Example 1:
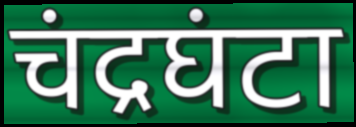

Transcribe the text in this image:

चंद्रघंटा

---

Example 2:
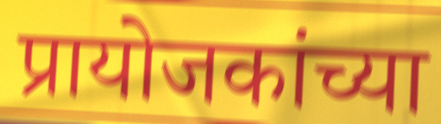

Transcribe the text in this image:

प्रायोजकांच्या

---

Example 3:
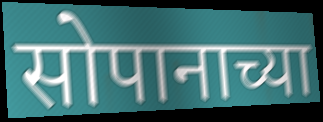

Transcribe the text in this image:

सोपानाच्या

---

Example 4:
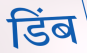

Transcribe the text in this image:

डिंब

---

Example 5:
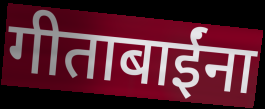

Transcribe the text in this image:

गीताबाईंना